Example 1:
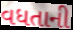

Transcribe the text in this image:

વધતાની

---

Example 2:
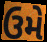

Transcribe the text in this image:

ઉમે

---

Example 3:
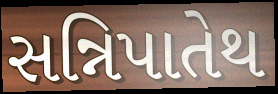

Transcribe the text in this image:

સન્નિપાતેથ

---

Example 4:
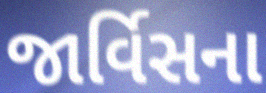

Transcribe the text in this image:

જાર્વિસના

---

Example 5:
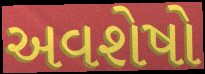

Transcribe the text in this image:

અવશેષો